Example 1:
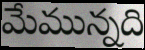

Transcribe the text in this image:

మేమున్నది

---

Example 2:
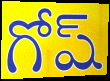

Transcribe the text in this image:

గోష్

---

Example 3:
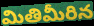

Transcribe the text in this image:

మితిమీరిన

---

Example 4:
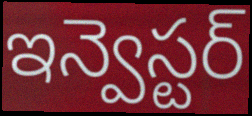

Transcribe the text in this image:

ఇన్వెస్టర్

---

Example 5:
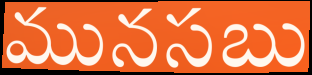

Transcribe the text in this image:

మునసబు